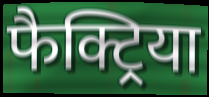
फैक्ट्रिया